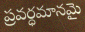
ప్రవర్ధమానమై